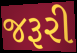
જરૂરી